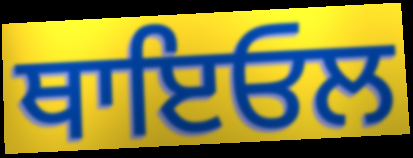
ਥਾਇਓਲ